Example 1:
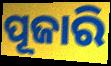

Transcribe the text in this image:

ପୂଜାରି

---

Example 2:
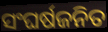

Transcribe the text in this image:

ସଂଘର୍ଷଜନିତ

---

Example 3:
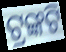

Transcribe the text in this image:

ଟ୍ରଙ୍କଟି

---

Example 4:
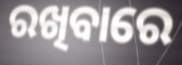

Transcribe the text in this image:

ରଖିବାରେ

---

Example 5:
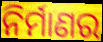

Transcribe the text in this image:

ନିର୍ମାଣର